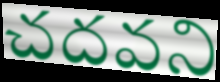
చదవని